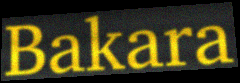
Bakara